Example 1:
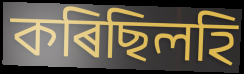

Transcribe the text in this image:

কৰিছিলহি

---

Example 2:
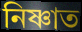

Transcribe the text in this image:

নিষ্ণাত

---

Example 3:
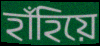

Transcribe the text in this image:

হাঁহিয়ে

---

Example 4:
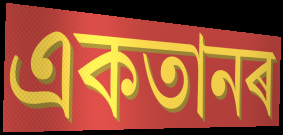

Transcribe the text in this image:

একতানৰ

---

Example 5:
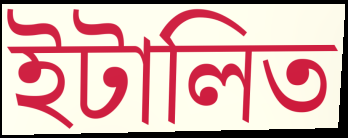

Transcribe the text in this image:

ইটালিত